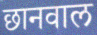
छानवाल